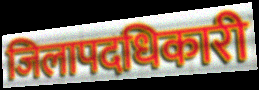
जिलापदधिकारी